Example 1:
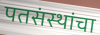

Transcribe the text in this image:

पतसंस्थांचा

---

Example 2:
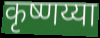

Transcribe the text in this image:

कृष्णय्या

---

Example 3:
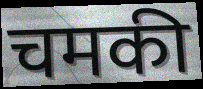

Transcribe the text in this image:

चमकी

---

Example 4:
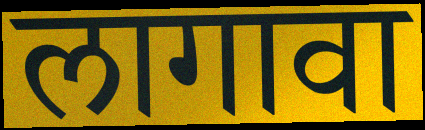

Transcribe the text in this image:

लागावा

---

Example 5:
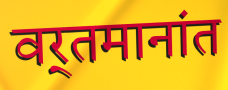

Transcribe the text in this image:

वर्तमानांत